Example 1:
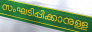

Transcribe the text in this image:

സംഘടിപ്പിക്കാനുള്ള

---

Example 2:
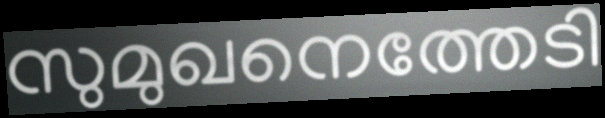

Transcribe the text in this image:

സുമുഖനെത്തേടി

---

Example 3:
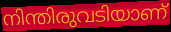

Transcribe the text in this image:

നിന്തിരുവടിയാണ്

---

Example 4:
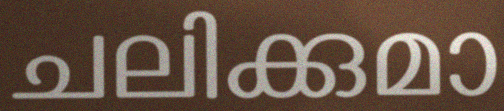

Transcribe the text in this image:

ചലിക്കുമാ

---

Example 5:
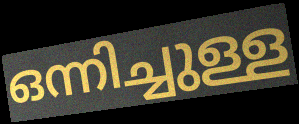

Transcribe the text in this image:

ഒന്നിച്ചുള്ള